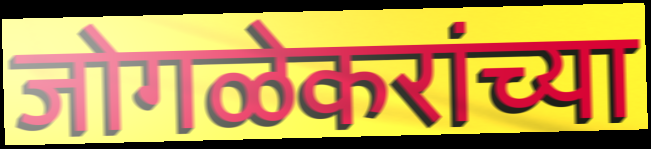
जोगळेकरांच्या